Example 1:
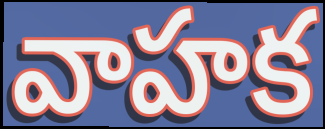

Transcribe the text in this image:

వాహక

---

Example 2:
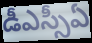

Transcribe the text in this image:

డీఎస్సీఏ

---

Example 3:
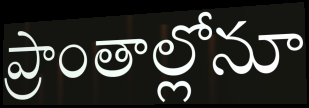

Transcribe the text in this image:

ప్రాంతాల్లోనూ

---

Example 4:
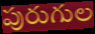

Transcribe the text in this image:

పురుగుల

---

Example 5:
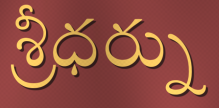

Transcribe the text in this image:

శ్రీధర్ను